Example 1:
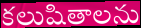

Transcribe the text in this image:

కలుషితాలను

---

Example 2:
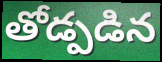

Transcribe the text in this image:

తోడ్పడిన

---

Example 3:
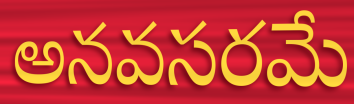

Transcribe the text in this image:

అనవసరమే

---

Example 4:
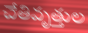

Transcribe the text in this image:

చేతివృత్తుల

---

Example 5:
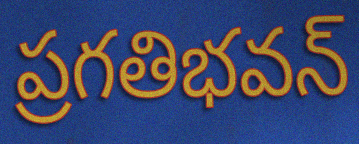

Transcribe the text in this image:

ప్రగతిభవన్